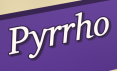
Pyrrho